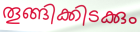
തൂങ്ങിക്കിടക്കും